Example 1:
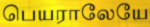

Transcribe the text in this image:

பெயராலேயே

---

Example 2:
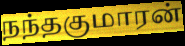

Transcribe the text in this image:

நந்தகுமாரன்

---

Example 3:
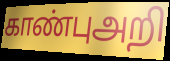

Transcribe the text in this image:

காண்புஅறி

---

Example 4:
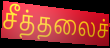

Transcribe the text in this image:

சீத்தலைச்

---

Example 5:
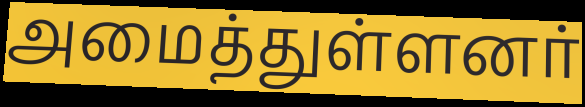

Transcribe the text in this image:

அமைத்துள்ளனர்